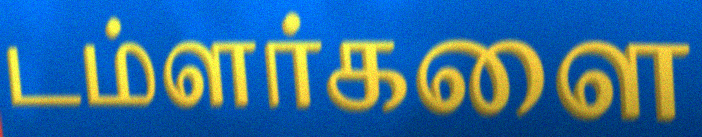
டம்ளர்களை